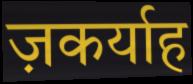
ज़कर्याह